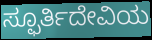
ಸ್ಫೂರ್ತಿದೇವಿಯ